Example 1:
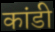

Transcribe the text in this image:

कांडी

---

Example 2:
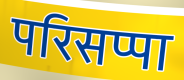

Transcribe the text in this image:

परिसप्पा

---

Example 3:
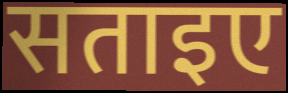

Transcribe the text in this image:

सताइए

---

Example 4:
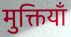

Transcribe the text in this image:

मुक्तियाँ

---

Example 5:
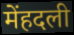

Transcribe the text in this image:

मेंहदली